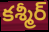
కశ్మీర్